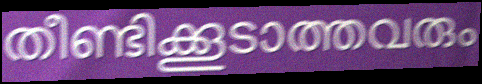
തീണ്ടിക്കൂടാത്തവരും